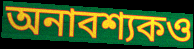
অনাবশ্যকও